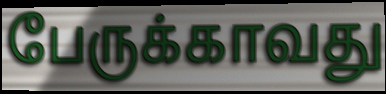
பேருக்காவது